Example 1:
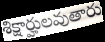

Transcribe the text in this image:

శిక్షార్హులవుతారు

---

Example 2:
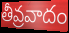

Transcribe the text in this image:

తీవ్రవాదం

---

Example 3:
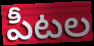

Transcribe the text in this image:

పీటల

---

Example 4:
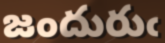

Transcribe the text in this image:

జందురుఁ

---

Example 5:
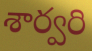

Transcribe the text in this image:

శార్వరి